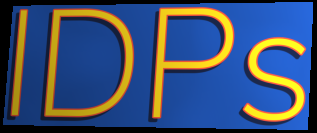
IDPs